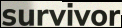
survivor